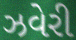
ઝવેરી